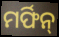
ମର୍ଫିନ୍